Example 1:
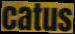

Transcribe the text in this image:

catus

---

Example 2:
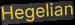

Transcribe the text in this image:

Hegelian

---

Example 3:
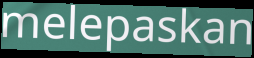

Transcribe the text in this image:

melepaskan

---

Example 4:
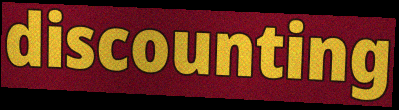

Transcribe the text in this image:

discounting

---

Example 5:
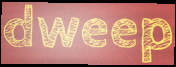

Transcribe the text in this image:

dweep